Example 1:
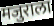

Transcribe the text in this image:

मजुराला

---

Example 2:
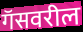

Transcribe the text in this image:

गॅसवरील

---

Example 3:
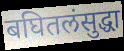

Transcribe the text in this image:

बघितलंसुद्धा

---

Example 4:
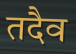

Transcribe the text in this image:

तदैव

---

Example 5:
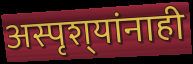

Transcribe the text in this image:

अस्पृश्यांनाही